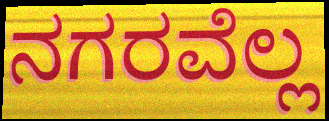
ನಗರವೆಲ್ಲ